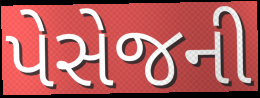
પેસેજની